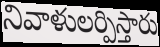
నివాళులర్పిస్తారు